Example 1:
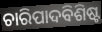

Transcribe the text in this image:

ଚାରିପାଦବିଶିଷ୍ଟ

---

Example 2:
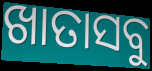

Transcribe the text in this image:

ଖାତାସବୁ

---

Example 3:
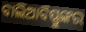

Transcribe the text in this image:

ବାଲିଆବିଷ୍ଣୁଙ୍କର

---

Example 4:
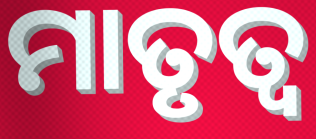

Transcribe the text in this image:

ମାତୃତ୍ୱ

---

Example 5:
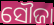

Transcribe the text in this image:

ସୌଜା